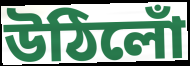
উঠিলোঁ